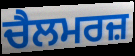
ਚੈਲਮਰਜ਼